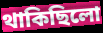
থাকিছিলো